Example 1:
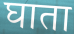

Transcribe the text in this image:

घाता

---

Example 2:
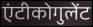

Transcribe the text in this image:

एंटीकोगुलेंट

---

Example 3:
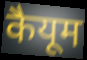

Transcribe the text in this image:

कैयूम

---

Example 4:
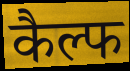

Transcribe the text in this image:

कैल्फ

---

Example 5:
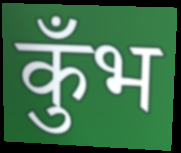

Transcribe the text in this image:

कुँभ